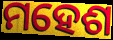
ମହେଶ